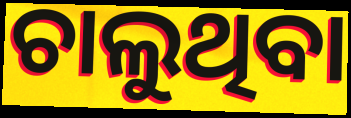
ଚାଲୁଥିବା